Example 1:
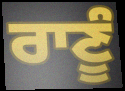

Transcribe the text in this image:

ਰਾਣੂੰ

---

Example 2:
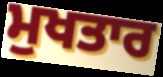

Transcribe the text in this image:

ਮੁਖਤਾਰ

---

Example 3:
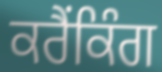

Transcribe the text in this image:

ਕਰੈਂਕਿੰਗ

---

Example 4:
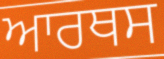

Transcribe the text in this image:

ਆਰਥਸ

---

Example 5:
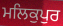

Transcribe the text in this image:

ਮਲਿਕੁਪੁਰ